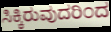
ಸಿಕ್ಕಿರುವುದರಿಂದ